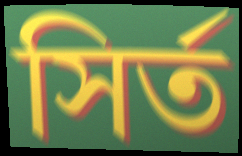
সির্ত